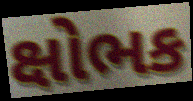
ક્ષોભક